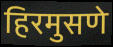
हिरमुसणे